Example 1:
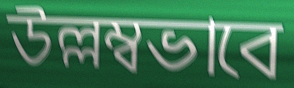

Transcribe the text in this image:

উল্লম্বভাবে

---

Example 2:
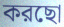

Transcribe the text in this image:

করছো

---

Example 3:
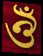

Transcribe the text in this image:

ঔঁ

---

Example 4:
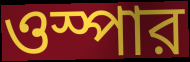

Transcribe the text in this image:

ওস্পার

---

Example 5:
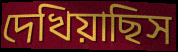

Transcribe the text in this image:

দেখিয়াছিস